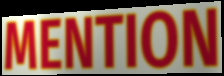
MENTION